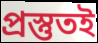
প্রস্তুতই